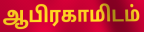
ஆபிரகாமிடம்